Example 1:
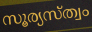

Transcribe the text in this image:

സൂര്യസ്ത്വം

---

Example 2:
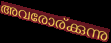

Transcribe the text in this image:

അവരോര്ക്കുന്നു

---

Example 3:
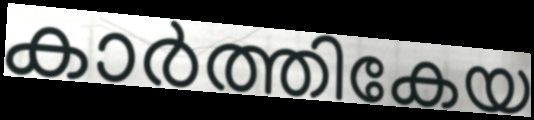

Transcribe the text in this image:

കാർത്തികേയ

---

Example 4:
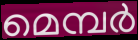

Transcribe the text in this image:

മെമ്പർ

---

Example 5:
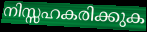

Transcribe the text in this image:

നിസ്സഹകരിക്കുക